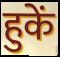
हुकें